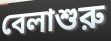
বেলাশুরু